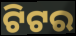
ଟିଟର